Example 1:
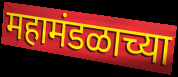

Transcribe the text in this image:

महामंडळाच्या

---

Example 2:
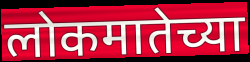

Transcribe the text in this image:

लोकमातेच्या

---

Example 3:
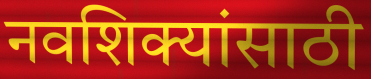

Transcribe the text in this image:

नवशिक्यांसाठी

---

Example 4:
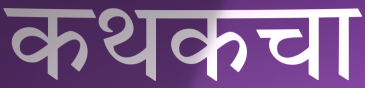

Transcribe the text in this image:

कथकचा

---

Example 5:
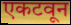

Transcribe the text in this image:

एकटवून